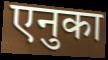
एनुका